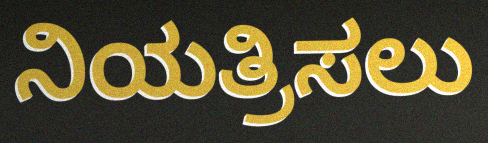
ನಿಯತ್ರಿಸಲು